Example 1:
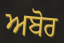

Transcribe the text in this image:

ਅਬੋਰ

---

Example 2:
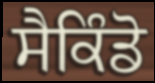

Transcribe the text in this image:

ਸੈਕਿੰਡੋ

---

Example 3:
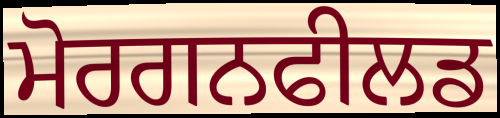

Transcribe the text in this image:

ਮੋਰਗਨਫੀਲਡ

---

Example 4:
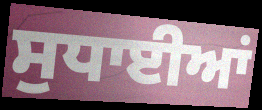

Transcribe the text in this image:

ਸੁਧਾਈਆਂ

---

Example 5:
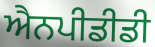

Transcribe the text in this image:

ਐਨਪੀਡੀਡੀ